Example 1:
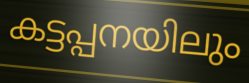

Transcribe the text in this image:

കട്ടപ്പനയിലും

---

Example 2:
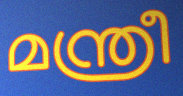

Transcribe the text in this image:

മന്ത്രീ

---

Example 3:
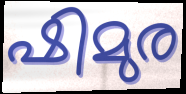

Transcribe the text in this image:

ഷിമുര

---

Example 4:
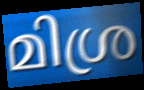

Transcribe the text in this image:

മിശ്ര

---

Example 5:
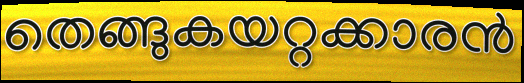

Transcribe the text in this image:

തെങ്ങുകയറ്റക്കാരൻ